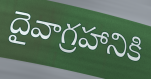
దైవాగ్రహానికి